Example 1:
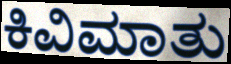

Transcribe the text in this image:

ಕಿವಿಮಾತು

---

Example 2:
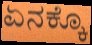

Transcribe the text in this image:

ಏನಕ್ಕೊ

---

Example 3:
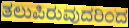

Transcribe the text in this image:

ತಲುಪಿರುವುದರಿಂದ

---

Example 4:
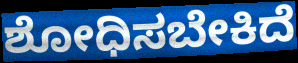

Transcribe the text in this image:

ಶೋಧಿಸಬೇಕಿದೆ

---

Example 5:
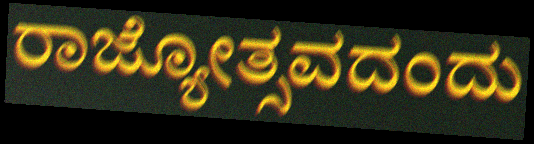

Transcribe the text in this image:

ರಾಜ್ಯೋತ್ಸವದಂದು